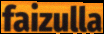
faizulla